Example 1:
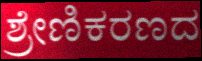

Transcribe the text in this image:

ಶ್ರೇಣಿಕರಣದ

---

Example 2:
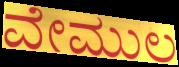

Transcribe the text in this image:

ವೇಮುಲ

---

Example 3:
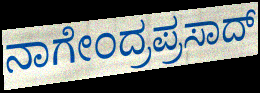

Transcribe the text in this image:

ನಾಗೇಂದ್ರಪ್ರಸಾದ್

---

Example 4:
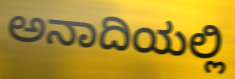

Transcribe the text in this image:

ಅನಾದಿಯಲ್ಲಿ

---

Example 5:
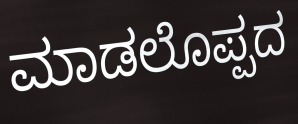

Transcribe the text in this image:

ಮಾಡಲೊಪ್ಪದ